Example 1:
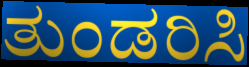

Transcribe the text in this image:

ತುಂಡರಿಸಿ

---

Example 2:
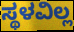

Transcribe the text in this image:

ಸ್ಥಳವಿಲ್ಲ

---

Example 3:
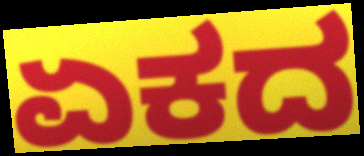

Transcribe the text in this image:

ಏಕದ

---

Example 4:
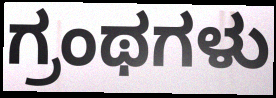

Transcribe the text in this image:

ಗ್ರಂಥಗಳು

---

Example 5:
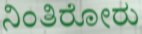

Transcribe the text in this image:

ನಿಂತಿರೋರು